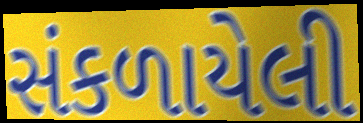
સંકળાયેલી